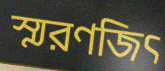
স্মরণজিৎ